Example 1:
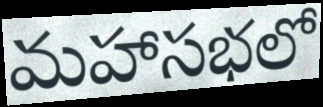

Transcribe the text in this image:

మహాసభలో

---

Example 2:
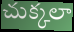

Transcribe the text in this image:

చుక్కలా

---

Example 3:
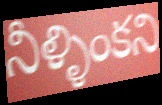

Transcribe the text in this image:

నీళ్ళింకని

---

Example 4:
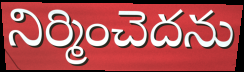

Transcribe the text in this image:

నిర్మించెదను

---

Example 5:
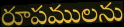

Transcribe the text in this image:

రూపములను